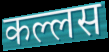
कल्लस